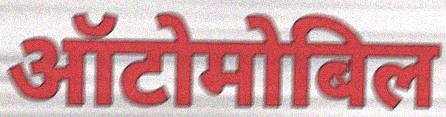
ऑटोमोबिल